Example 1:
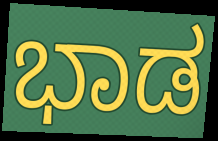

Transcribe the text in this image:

ಭಾಡ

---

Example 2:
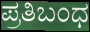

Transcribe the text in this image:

ಪ್ರತಿಬಂಧ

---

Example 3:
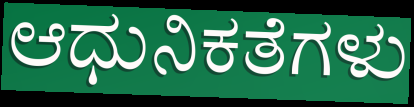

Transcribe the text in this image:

ಆಧುನಿಕತೆಗಳು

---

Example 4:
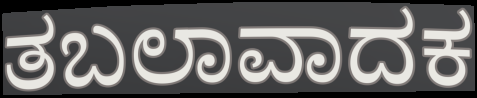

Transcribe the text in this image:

ತಬಲಾವಾದಕ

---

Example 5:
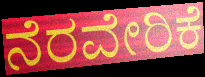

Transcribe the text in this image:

ನೆರವೇರಿಕೆ